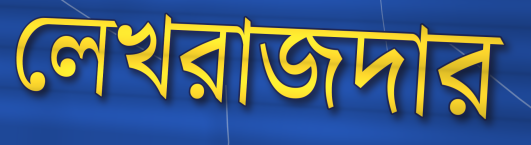
লেখরাজদার